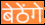
बेठेंगे